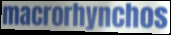
macrorhynchos